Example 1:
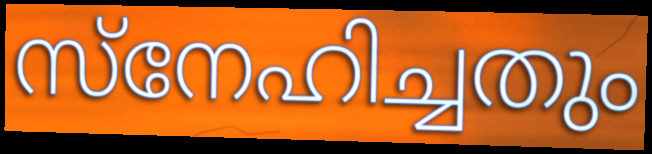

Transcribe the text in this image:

സ്നേഹിച്ചതും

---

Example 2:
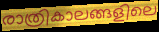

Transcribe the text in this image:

രാത്രികാലങ്ങളിലെ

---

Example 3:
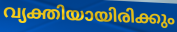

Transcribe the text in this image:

വ്യക്തിയായിരിക്കും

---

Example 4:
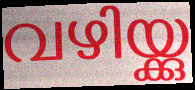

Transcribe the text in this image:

വഴിയ്ക്കു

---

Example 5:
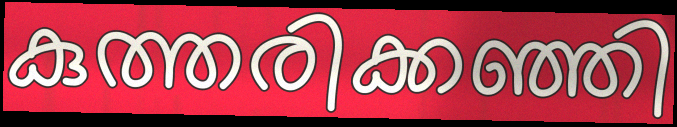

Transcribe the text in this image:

കുത്തരിക്കഞ്ഞി